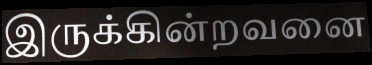
இருக்கின்றவனை